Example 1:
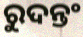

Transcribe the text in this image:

ରୁଦନ୍ତଂ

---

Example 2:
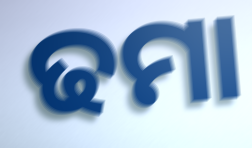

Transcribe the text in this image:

ଢମା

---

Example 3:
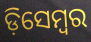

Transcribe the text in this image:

ଡ଼ିସେମ୍ୱର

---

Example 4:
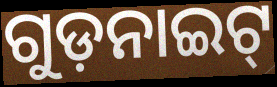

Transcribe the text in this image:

ଗୁଡ଼ନାଇଟ୍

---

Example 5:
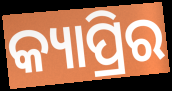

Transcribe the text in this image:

କ୍ୟାପ୍ରିର